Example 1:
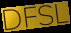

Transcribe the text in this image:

DFSL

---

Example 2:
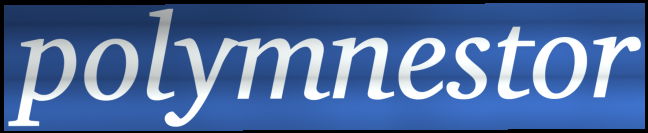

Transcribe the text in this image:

polymnestor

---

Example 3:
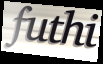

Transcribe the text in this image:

futhi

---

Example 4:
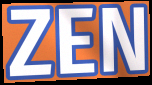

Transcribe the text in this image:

ZEN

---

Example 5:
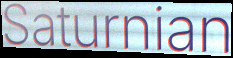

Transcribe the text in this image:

Saturnian